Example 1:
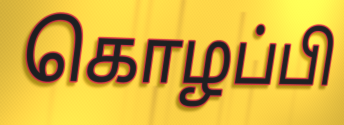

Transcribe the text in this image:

கொழப்பி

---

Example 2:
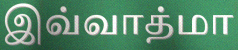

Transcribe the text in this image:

இவ்வாத்மா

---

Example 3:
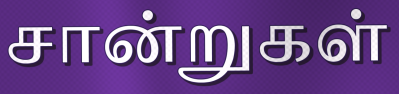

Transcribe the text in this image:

சான்றுகள்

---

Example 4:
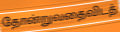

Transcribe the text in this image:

தோன்றுவதைவிடத்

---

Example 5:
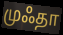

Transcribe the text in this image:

முஃதா